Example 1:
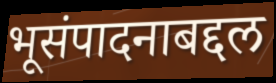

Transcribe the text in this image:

भूसंपादनाबद्दल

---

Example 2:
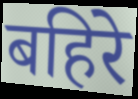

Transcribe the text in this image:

बहिरे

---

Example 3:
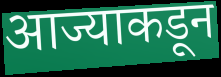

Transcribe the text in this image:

आज्याकडून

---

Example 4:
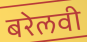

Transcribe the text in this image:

बरेलवी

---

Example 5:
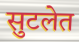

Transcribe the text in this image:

सुटलेत